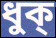
ধুক্